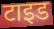
टाइड